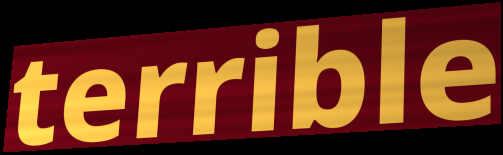
terrible